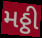
મઠ્ઠી